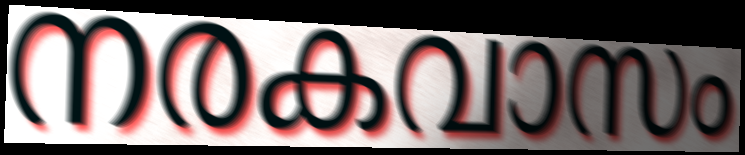
നരകവാസം